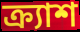
ক্র্যাশ